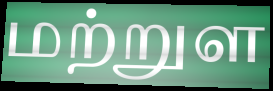
மற்றுள